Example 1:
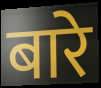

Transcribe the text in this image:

बारे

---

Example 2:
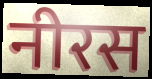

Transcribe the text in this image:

नीरस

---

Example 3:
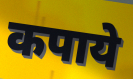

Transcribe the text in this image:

कपाये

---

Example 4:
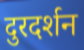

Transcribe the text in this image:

दुरदर्शन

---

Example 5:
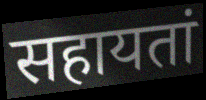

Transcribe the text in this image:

सहायतां